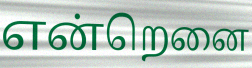
என்றெனை